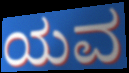
ಯವ